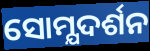
ସୋମ୍ଯଦର୍ଶନ